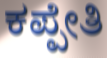
ಕಪ್ಪೇತಿ